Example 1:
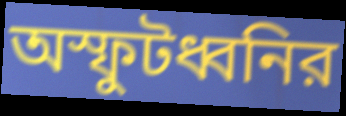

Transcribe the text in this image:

অস্ফুটধ্বনির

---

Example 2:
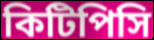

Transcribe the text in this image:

কিটিপিসি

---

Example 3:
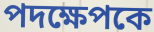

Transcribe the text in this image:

পদক্ষেপকে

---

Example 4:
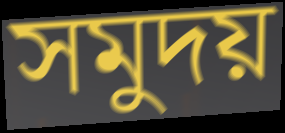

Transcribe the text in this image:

সমুদয়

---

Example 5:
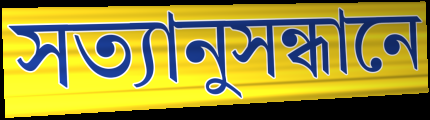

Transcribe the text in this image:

সত্যানুসন্ধানে